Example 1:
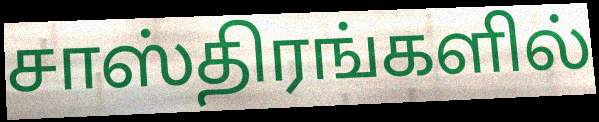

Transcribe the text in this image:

சாஸ்திரங்களில்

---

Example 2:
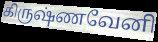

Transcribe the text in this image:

கிருஷ்ணவேனி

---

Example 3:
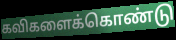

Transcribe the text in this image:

கவிகளைக்கொண்டு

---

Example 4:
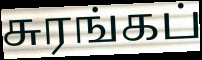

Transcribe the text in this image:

சுரங்கப்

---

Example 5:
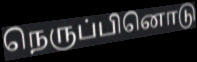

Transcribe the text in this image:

நெருப்பினொடு